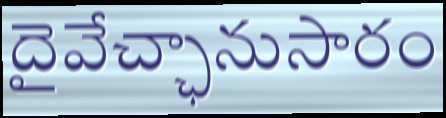
దైవేచ్ఛానుసారం